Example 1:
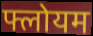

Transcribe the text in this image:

फ्लोयम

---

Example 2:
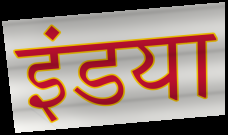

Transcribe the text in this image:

इंडया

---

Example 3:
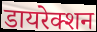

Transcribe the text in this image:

डायरेक्शन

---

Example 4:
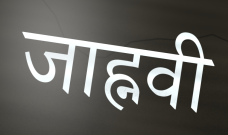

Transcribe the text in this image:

जाह्नवी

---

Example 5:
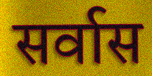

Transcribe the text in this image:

सर्वास